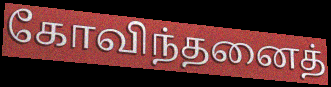
கோவிந்தனைத்